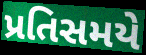
પ્રતિસમયે